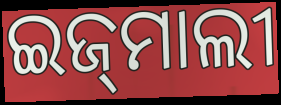
ଇଜ୍‌ମାଲୀ